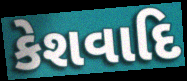
કેશવાદિ